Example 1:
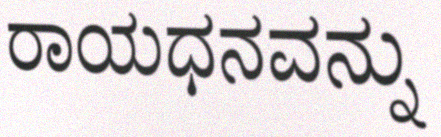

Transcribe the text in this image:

ರಾಯಧನವನ್ನು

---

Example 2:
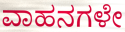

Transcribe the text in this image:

ವಾಹನಗಳೇ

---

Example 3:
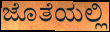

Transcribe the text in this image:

ಜೊತೆಯಲ್ಲಿ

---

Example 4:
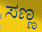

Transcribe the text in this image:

ಸಣ್ಣ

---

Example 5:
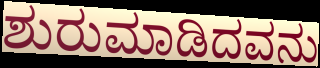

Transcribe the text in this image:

ಶುರುಮಾಡಿದವನು